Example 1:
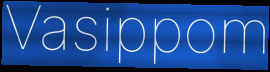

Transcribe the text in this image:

Vasippom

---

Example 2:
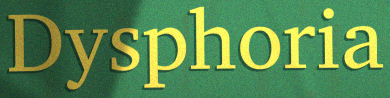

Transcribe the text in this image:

Dysphoria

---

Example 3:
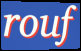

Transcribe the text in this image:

rouf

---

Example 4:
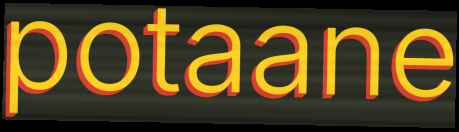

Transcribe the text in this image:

potaane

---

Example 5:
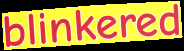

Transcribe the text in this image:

blinkered